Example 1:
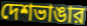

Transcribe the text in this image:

দেশভাঙার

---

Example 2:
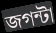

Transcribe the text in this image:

জগন্টা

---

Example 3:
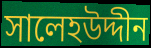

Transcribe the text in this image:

সালেহউদ্দীন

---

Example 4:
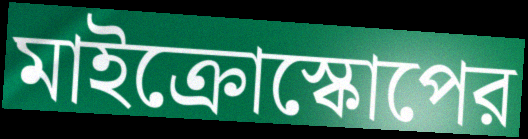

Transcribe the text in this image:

মাইক্রোস্কোপের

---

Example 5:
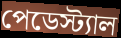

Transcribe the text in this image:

পেডেস্ট্যাল